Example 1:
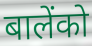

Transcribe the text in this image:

बालेंको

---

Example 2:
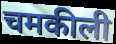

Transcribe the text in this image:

चमकीली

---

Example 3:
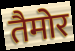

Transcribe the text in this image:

तैमोर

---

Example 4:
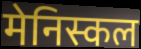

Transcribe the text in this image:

मेनिस्कल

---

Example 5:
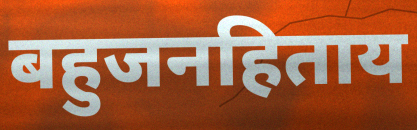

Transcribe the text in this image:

बहुजनहिताय